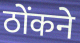
ठोंकने